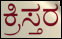
ಕ್ರಿಸ್ತರ